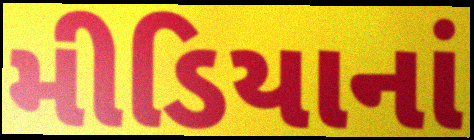
મીડિયાનાં